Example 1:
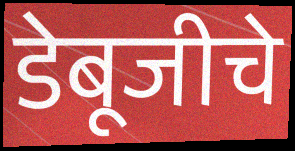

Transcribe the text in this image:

डेबूजीचे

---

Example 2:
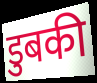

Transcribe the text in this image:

डुबकी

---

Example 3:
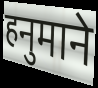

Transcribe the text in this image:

हनुमाने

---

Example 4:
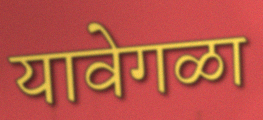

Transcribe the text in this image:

यावेगळा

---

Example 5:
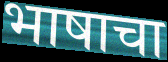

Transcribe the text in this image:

भाषाचा